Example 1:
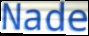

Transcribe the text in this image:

Nade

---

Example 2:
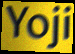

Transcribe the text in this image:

Yoji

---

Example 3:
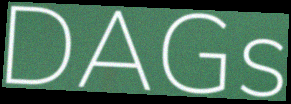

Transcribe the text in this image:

DAGs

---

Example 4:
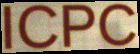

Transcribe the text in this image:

ICPC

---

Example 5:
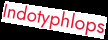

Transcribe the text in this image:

Indotyphlops